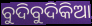
ବୁଦିବୁଦିକିଆ